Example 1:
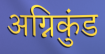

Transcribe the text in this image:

अग्निकुंड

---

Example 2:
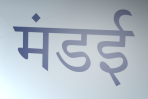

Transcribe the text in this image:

मंडई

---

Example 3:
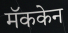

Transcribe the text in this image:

मॅककेन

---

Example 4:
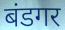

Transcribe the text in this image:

बंडगर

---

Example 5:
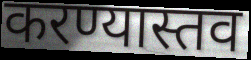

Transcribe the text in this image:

करण्यास्तव